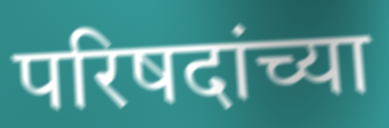
परिषदांच्या